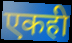
एकही